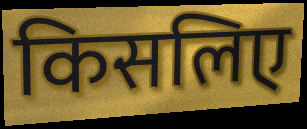
किसलिए